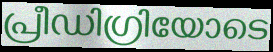
പ്രീഡിഗ്രിയോടെ